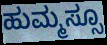
ಹುಮ್ಮಸ್ಸೂ